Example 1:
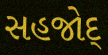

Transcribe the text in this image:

સહજોદ્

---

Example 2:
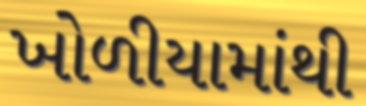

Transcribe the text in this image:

ખોળીયામાંથી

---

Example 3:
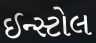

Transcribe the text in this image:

ઈન્સ્ટોલ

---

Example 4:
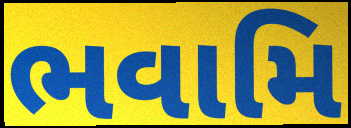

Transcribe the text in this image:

ભવામિ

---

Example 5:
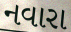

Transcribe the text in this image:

નવારા